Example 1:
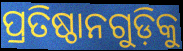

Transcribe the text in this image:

ପ୍ରତିଷ୍ଠାନଗୁଡ଼ିକୁ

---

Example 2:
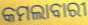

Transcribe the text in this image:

କମଲାବାରୀ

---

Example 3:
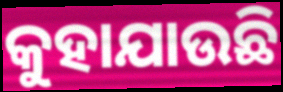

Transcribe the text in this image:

କୁହାଯାଉଛି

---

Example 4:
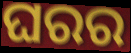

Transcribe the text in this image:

ଘରର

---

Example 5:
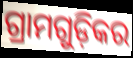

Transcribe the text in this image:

ଗ୍ରାମଗୁଡ଼ିକର